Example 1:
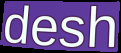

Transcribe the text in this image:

desh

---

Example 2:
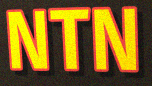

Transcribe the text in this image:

NTN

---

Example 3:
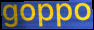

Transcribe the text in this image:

goppo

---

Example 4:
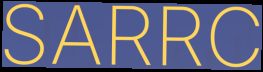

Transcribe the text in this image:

SARRC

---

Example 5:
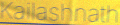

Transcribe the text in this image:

Kailashnath